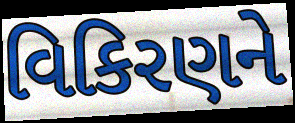
વિકિરણને